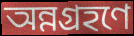
অন্নগ্রহণে